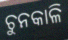
ଚୁନକାଳି